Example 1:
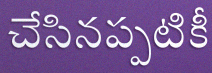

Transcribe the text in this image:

చేసినప్పటికీ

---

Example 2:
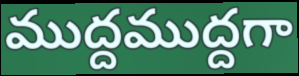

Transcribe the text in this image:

ముద్దముద్దగా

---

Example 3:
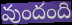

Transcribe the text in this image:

వుందంది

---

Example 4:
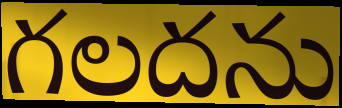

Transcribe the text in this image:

గలదను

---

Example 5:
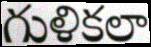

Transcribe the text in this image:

గుళికలా